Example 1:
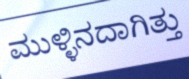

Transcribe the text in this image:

ಮುಳ್ಳಿನದಾಗಿತ್ತು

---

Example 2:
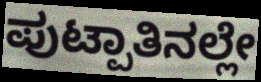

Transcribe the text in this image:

ಪುಟ್ಪಾತಿನಲ್ಲೇ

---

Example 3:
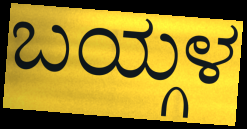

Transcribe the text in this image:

ಬಯ್ಗಳ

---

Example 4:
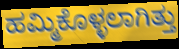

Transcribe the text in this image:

ಹಮ್ಮಿಕೊಳ್ಳಲಾಗಿತ್ತು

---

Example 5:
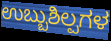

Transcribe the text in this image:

ಉಬ್ಬುಶಿಲ್ಪಗಳ